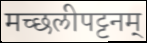
मच्छलीपट्टनम्